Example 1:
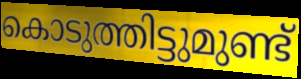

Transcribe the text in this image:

കൊടുത്തിട്ടുമുണ്ട്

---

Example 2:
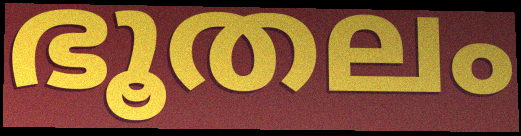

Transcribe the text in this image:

ഭൂതലം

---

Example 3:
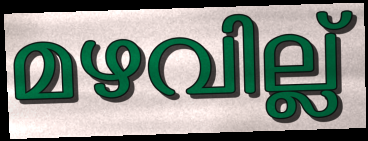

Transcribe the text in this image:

മഴവില്ല്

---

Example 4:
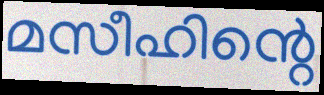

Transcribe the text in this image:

മസീഹിന്റെ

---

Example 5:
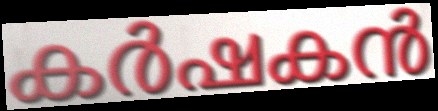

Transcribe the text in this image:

കർഷകൻ